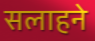
सलाहने